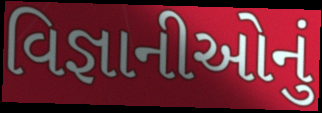
વિજ્ઞાનીઓનું